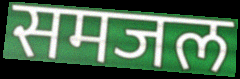
समजल